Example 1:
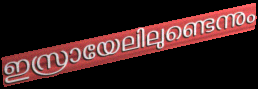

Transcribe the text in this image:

ഇസ്രായേലിലുണ്ടെന്നും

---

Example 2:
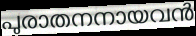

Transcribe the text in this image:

പുരാതനനായവൻ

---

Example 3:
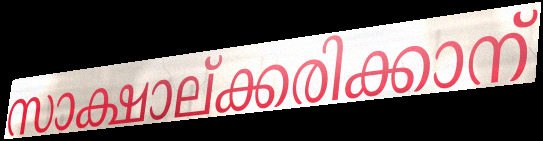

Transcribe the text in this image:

സാക്ഷാല്ക്കരിക്കാന്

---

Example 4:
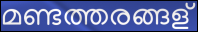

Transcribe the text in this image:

മണ്ടത്തരങ്ങള്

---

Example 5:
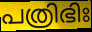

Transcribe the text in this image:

പത്രിഭിഃ